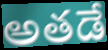
అతడే